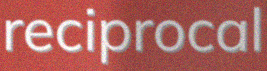
reciprocal